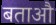
बताऔ